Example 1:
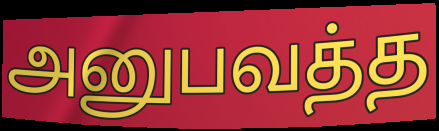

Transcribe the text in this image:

அனுபவத்த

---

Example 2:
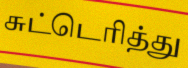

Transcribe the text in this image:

சுட்டெரித்து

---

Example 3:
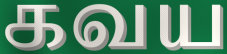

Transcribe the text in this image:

கவய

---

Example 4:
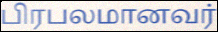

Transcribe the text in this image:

பிரபலமானவர்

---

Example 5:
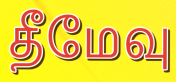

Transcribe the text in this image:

தீமேவு